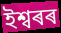
ইশ্বৰৰ